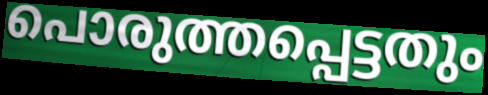
പൊരുത്തപ്പെട്ടതും